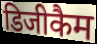
डिजीकैम